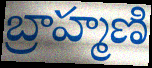
బ్రాహ్మణి